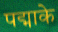
पद्माके